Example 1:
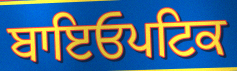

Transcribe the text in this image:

ਬਾਇਓਪਟਿਕ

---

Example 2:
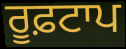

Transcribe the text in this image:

ਰੂਫ਼ਟਾਪ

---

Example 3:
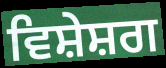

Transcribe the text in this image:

ਵਿਸ਼ੇਸ਼ਗ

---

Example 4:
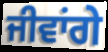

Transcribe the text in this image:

ਜੀਵਾਂਗੇ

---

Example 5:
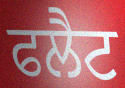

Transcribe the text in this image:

ਫਲੈਟ